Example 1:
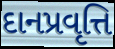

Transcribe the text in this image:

દાનપ્રવૃત્તિ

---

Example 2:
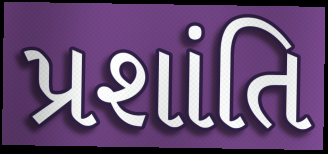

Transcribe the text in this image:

પ્રશાંતિ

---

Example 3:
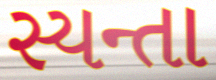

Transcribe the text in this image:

સ્યન્તા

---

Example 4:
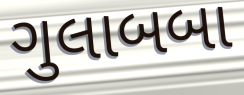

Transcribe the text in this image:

ગુલાબબા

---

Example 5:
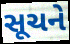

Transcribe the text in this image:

સૂચને